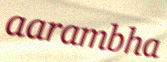
aarambha